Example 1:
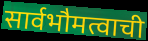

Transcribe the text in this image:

सार्वभौमत्वाची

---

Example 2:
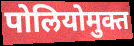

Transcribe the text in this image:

पोलियोमुक्त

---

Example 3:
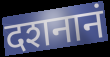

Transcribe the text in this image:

दशनानं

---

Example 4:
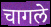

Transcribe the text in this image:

चागले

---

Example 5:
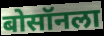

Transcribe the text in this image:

बोसॉनला